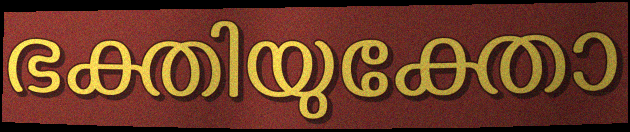
ഭക്തിയുക്തോ